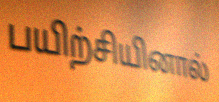
பயிற்சியினால்